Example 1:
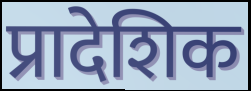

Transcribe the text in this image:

प्रादेशिक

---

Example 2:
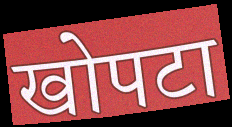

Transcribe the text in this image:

खोपटा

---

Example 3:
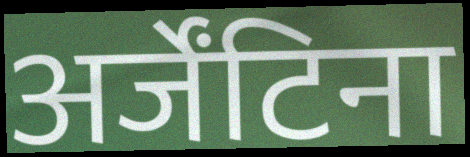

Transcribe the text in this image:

अर्जेंटिना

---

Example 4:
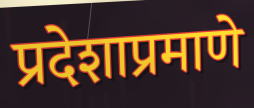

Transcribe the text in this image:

प्रदेशाप्रमाणे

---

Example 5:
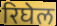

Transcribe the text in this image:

रिघेल